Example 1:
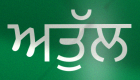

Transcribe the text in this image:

ਅਤੁੱਲ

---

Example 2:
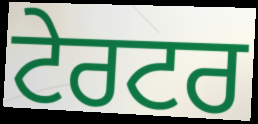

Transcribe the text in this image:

ਟੇਰਟਰ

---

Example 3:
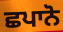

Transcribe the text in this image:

ਛਪਾਨੋ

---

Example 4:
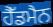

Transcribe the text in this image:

ਹੈੱਡਮੈਨ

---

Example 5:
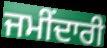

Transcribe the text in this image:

ਜਮੀਂਦਾਰੀ